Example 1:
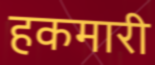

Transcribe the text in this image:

हकमारी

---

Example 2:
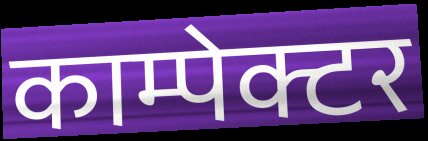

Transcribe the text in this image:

काम्पेक्टर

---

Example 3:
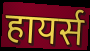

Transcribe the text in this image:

हायर्स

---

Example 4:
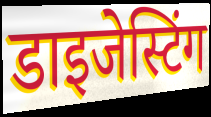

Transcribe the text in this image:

डाइजेस्टिंग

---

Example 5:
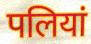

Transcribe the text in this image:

पलियां